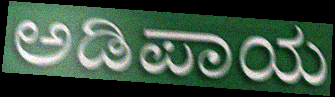
ಅಡಿಪಾಯ